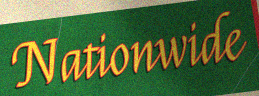
Nationwide